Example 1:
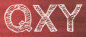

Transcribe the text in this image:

QXY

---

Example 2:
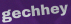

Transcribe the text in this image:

gechhey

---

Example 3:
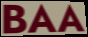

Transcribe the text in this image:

BAA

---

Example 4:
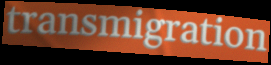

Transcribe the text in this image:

transmigration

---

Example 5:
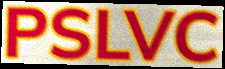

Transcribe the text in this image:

PSLVC